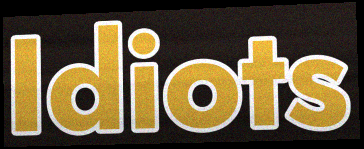
Idiots